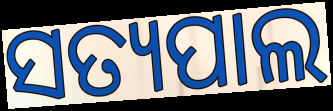
ସତ୍ୟପାଲ